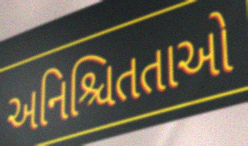
અનિશ્ચિતતાઓ